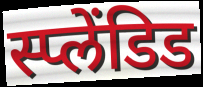
स्प्लेंडिड